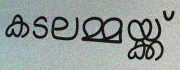
കടലമ്മയ്ക്ക്